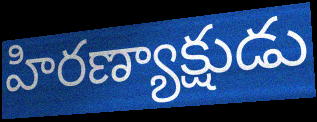
హిరణ్యాక్షుడు